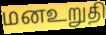
மனஉறுதி